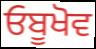
ਓਬੂਖੋਵ